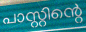
പാസ്റ്റിന്റെ